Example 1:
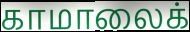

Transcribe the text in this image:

காமாலைக்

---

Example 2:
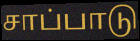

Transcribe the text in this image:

சாப்பாடு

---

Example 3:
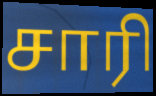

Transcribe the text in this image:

சாரி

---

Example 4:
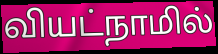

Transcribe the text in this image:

வியட்நாமில்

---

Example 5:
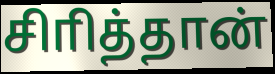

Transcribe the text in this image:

சிரித்தான்